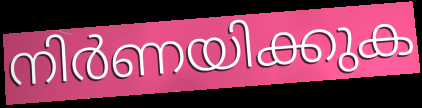
നിർണയിക്കുക